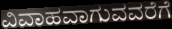
ವಿವಾಹವಾಗುವವರೆಗೆ